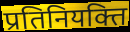
प्रतिनियक्ति